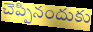
చెప్పినందుకు